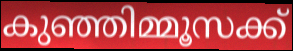
കുഞ്ഞിമ്മൂസക്ക്